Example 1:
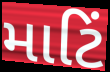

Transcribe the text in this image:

માટિં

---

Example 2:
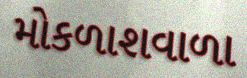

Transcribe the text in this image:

મોકળાશવાળા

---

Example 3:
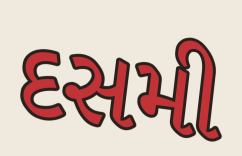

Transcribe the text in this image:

દસમી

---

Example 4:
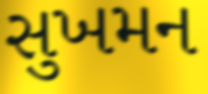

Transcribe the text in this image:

સુખમન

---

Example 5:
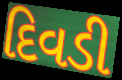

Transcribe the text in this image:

દિવડી